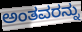
ಅಂತವರನ್ನು